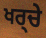
ਖਰ੍ਚੇ